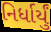
નિર્ધાર્યું